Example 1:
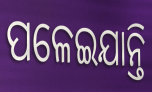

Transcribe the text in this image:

ପଳେଇଯାନ୍ତି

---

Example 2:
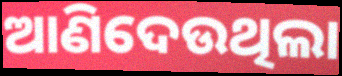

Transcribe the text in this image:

ଆଣିଦେଉଥିଲା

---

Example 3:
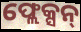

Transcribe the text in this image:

ଫ୍ଲେକ୍ସନ୍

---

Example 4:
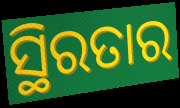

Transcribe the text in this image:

ସ୍ଥିରତାର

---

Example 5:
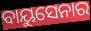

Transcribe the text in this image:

ବାୟୁସେନାର